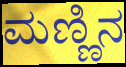
ಮಣ್ಣಿನ